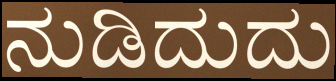
ನುಡಿದುದು